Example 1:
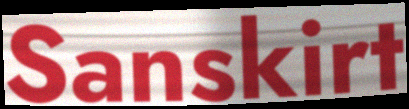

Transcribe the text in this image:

Sanskirt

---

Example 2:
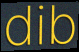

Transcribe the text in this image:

dib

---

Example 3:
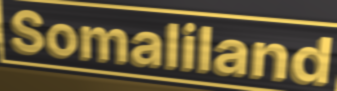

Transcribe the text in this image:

Somaliland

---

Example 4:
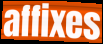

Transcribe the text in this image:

affixes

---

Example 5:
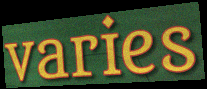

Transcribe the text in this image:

varies